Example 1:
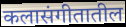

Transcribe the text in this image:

कलासंगीतातील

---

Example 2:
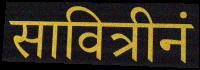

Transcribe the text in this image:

सावित्रीनं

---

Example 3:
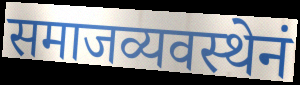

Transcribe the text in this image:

समाजव्यवस्थेनं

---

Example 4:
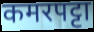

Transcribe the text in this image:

कमरपट्टा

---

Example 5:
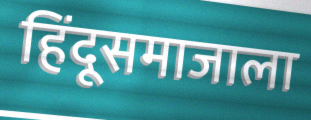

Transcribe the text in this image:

हिंदूसमाजाला